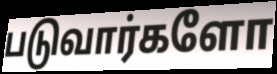
படுவார்களோ